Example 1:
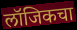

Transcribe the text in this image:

लॉजिकचा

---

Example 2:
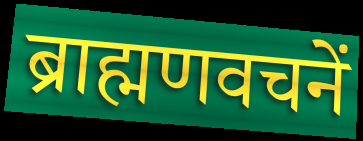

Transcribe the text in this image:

ब्राह्मणवचनें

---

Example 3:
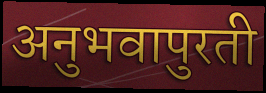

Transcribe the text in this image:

अनुभवापुरती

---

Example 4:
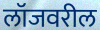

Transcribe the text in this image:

लॉजवरील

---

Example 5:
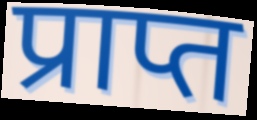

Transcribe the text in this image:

प्राप्त